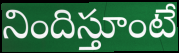
నిందిస్తూంటే